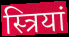
स्त्रियां